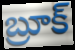
బ్రూక్